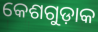
କେଶଗୁଡ଼ାକ